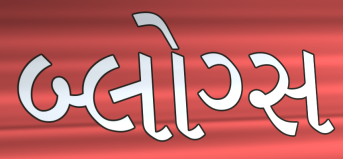
બ્લોગ્સ